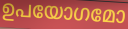
ഉപയോഗമോ